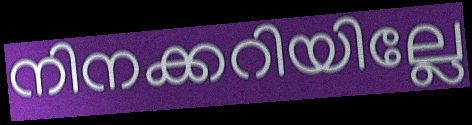
നിനക്കറിയില്ലേ